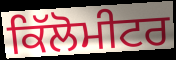
ਕਿੱਲੋਮੀਟਰ